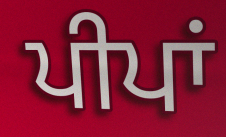
ਪੀਪਾਂ